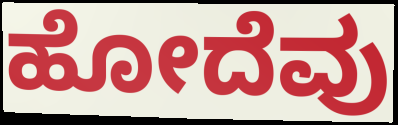
ಹೋದೆವು